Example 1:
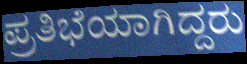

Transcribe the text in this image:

ಪ್ರತಿಭೆಯಾಗಿದ್ದರು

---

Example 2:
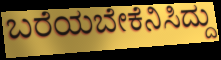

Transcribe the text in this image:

ಬರೆಯಬೇಕೆನಿಸಿದ್ದು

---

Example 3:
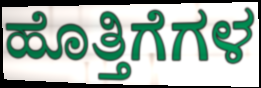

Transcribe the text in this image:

ಹೊತ್ತಿಗೆಗಳ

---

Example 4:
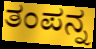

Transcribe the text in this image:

ತಂಪನ್ನ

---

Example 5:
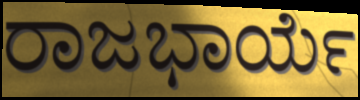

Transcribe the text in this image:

ರಾಜಭಾರ್ಯೆ